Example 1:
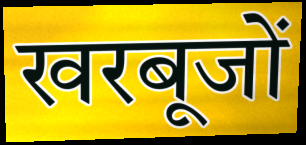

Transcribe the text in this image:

खरबूजों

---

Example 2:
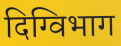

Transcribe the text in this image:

दिग्विभाग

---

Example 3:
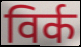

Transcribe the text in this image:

विर्क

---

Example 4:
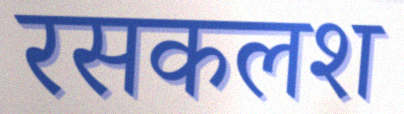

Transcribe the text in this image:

रसकलश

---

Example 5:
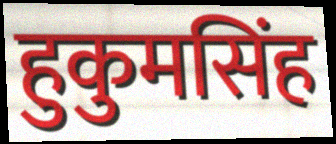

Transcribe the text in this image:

हुकुमसिंह